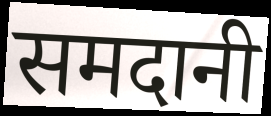
समदानी